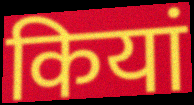
कियां